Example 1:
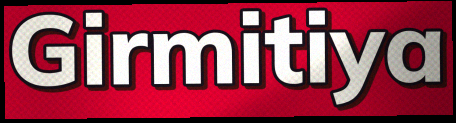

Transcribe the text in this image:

Girmitiya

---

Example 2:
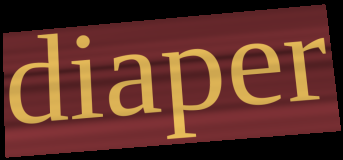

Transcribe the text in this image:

diaper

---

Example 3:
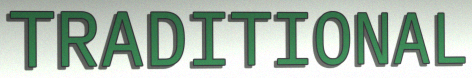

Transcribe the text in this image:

TRADITIONAL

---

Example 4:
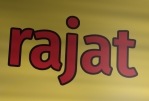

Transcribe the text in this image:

rajat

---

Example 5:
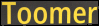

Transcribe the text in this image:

Toomer